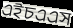
এইচএএস